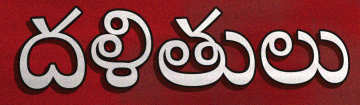
దళితులు